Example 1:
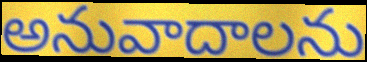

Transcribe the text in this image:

అనువాదాలను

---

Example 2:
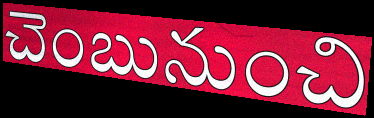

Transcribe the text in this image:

చెంబునుంచి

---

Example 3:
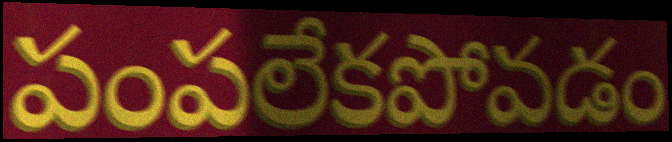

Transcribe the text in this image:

పంపలేకపోవడం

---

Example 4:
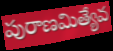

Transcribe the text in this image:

పురాణమిత్యేవ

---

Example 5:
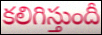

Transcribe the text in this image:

కలిగిస్తుందీ